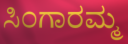
ಸಿಂಗಾರಮ್ಮ